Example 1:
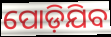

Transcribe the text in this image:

ପୋଡ଼ିଯିବ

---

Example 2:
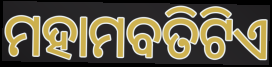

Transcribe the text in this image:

ମହାମବତିଟିଏ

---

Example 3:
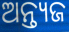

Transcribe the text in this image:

ଅନ୍ତ୍ୟଜ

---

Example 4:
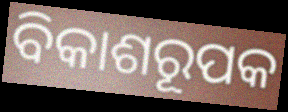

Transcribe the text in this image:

ବିକାଶରୂପକ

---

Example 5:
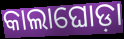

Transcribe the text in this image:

କାଲାଘୋଡ଼ା